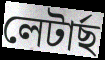
লেটাৰ্ছ